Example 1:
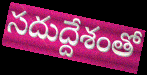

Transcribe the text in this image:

సదుద్దేశంతో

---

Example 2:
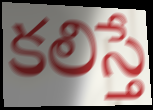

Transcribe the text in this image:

కలిస్తే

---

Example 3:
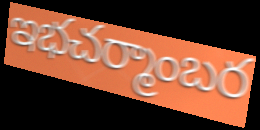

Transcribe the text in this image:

ఇభచర్మాంబర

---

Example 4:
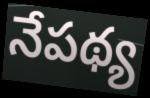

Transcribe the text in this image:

నేపథ్య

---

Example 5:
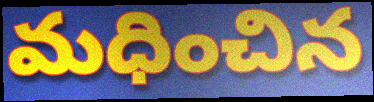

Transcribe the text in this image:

మధించిన